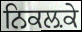
ਨਿਕਲ਼ਕੇ